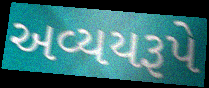
અવ્યયરૂપે